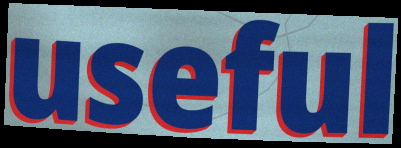
useful